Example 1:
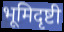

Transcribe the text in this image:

भूमिदृष्टी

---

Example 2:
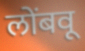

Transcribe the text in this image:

लोंबवू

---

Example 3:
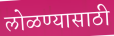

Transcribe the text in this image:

लोळण्यासाठी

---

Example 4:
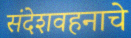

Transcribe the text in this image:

संदेशवहनाचे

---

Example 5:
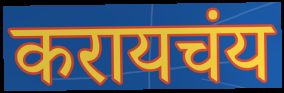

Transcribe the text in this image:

करायचंय